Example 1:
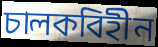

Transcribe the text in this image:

চালকবিহীন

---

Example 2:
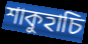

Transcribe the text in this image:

শাকুহাচি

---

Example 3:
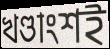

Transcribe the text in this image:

খণ্ডাংশই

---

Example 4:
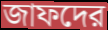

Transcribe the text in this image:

জাফদের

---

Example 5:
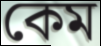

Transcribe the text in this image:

কেম